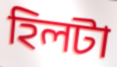
হিলটা